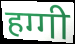
हग्गी